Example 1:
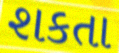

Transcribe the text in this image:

શકતા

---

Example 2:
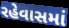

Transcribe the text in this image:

રહેવાસમાં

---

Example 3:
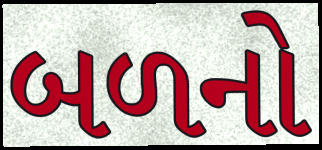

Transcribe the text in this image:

બળનો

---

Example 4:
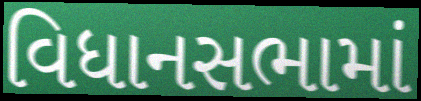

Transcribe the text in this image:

વિધાનસભામાં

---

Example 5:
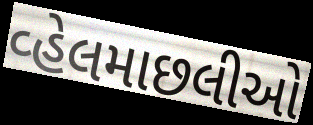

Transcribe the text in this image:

વ્હેલમાછલીઓ